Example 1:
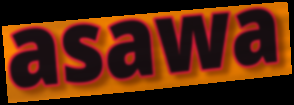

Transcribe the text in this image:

asawa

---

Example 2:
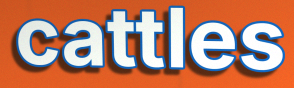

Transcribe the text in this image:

cattles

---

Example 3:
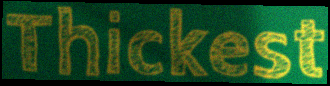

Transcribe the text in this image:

Thickest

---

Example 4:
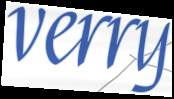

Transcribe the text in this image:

verry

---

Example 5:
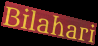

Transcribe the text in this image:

Bilahari